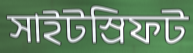
সাইটস্রিফট